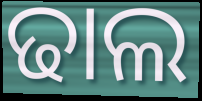
ଢାଲ